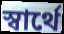
স্বার্থে